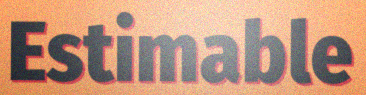
Estimable